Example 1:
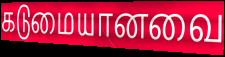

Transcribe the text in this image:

கடுமையானவை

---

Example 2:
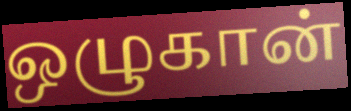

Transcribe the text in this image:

ஒழுகான்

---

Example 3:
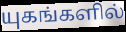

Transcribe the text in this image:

யுகங்களில்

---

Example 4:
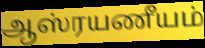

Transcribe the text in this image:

ஆஸ்ரயணீயம்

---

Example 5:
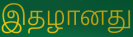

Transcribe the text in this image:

இதழானது